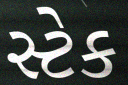
સ્ટેક